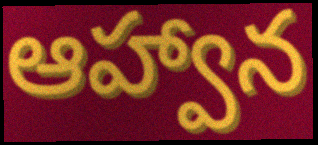
ఆహ్వాన